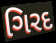
ગિરદ